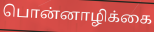
பொன்னாழிக்கை